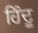
ਹਿੰਦੂ